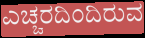
ಎಚ್ಚರದಿಂದಿರುವ